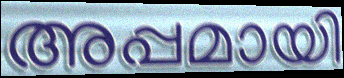
അപ്പമായി